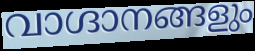
വാഗ്ദാനങ്ങളും